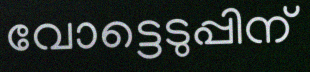
വോട്ടെടുപ്പിന്